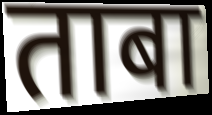
ताबा